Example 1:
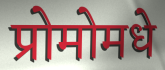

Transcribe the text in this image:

प्रोमोमधे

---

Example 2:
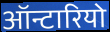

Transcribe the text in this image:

ऑन्टारियो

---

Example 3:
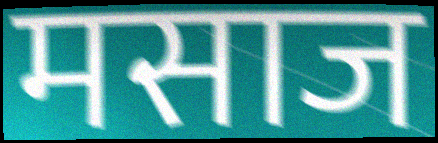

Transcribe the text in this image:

मसाज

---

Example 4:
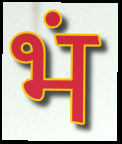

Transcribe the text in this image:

भं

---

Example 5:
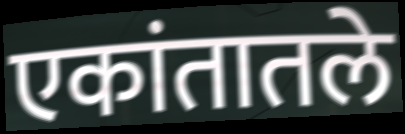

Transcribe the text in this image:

एकांतातले